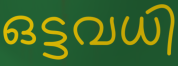
ഒട്ടവധി